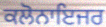
ਕਲੋਨਾਇਜਰ